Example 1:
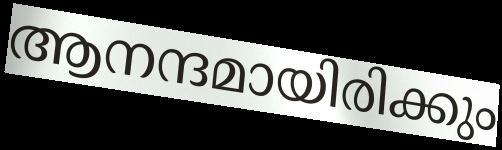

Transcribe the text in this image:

ആനന്ദമായിരിക്കും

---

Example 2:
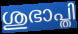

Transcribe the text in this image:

ശുഭാപ്തി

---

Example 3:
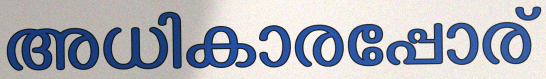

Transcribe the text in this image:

അധികാരപ്പോര്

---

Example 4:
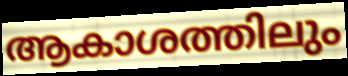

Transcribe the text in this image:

ആകാശത്തിലും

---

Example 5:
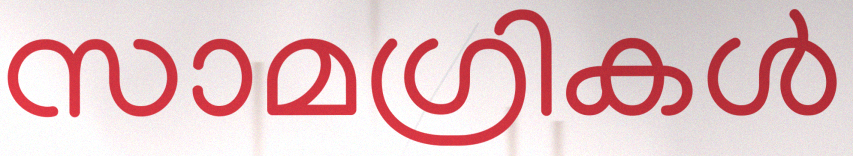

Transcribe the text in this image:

സാമഗ്രികൾ